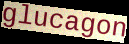
glucagon